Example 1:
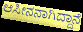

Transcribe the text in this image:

ಆಸೀನನಾಗಿದ್ದಾನೆ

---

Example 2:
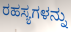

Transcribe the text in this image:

ರಹಸ್ಯಗಳನ್ನು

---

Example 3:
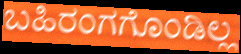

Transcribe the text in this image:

ಬಹಿರಂಗಗೊಂಡಿಲ್ಲ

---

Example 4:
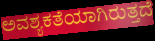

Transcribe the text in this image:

ಅವಶ್ಯಕತೆಯಾಗಿರುತ್ತದೆ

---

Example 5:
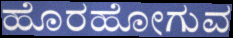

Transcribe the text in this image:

ಹೊರಹೋಗುವ